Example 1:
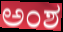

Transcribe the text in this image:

ಅಂಶ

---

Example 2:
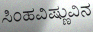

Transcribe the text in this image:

ಸಿಂಹವಿಷ್ಣುವಿನ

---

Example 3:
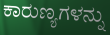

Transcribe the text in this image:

ಕಾರುಣ್ಯಗಳನ್ನು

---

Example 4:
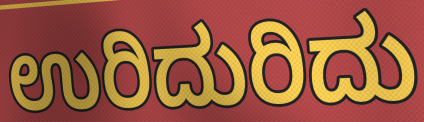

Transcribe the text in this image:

ಉರಿದುರಿದು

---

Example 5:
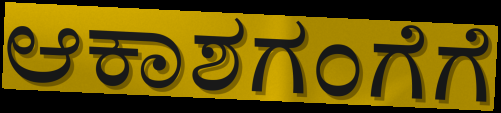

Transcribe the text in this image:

ಆಕಾಶಗಂಗೆಗೆ